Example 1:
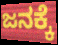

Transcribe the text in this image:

ಜನಕ್ಕೆ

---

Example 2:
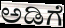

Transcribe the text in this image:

ಅಡಿಗೆ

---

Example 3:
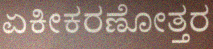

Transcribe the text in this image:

ಏಕೀಕರಣೋತ್ತರ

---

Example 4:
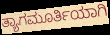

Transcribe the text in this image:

ತ್ಯಾಗಮೂರ್ತಿಯಾಗಿ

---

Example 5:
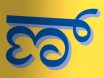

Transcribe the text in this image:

ಣ್